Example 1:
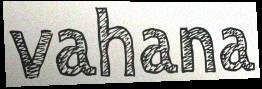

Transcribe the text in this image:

vahana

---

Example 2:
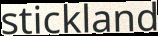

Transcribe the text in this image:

stickland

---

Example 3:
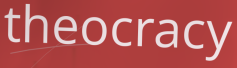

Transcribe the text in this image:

theocracy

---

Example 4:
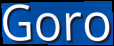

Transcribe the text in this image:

Goro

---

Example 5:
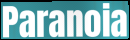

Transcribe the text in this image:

Paranoia